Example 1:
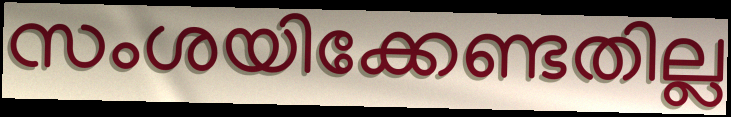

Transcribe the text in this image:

സംശയിക്കേണ്ടതില്ല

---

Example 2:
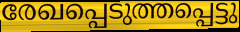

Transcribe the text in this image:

രേഖപ്പെടുത്തപ്പെട്ടു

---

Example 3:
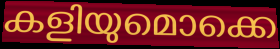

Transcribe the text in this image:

കളിയുമൊക്കെ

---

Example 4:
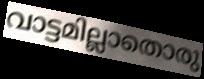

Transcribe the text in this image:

വാട്ടമില്ലാതൊരു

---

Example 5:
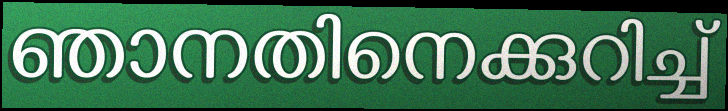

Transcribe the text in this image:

ഞാനതിനെക്കുറിച്ച്